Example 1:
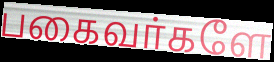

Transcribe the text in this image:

பகைவர்களே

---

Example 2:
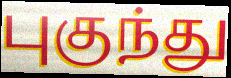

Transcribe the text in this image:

புகுந்து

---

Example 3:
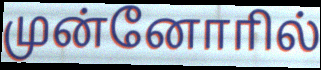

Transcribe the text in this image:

முன்னோரில்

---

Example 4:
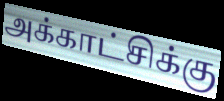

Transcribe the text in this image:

அக்காட்சிக்கு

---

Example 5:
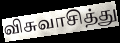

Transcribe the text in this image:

விசுவாசித்து